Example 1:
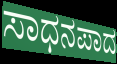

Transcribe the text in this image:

ಸಾಧನಪಾದ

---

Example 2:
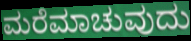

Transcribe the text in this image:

ಮರೆಮಾಚುವುದು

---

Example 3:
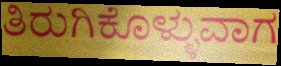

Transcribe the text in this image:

ತಿರುಗಿಕೊಳ್ಳುವಾಗ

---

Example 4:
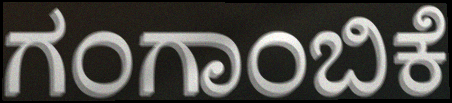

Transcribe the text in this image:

ಗಂಗಾಂಬಿಕೆ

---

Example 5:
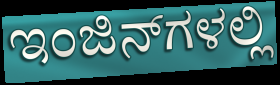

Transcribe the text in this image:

ಇಂಜಿನ್‌ಗಳಲ್ಲಿ